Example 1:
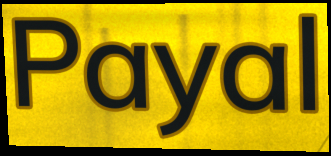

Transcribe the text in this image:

Payal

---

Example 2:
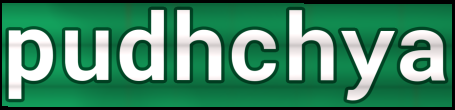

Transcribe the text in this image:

pudhchya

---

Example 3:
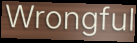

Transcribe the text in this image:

Wrongful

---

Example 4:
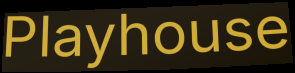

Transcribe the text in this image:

Playhouse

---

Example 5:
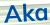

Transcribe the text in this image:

Aka